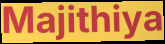
Majithiya